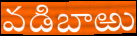
వడిబాఱు